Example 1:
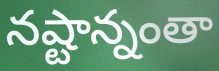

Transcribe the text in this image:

నష్టాన్నంతా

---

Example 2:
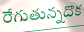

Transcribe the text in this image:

రేగుతున్నదొక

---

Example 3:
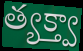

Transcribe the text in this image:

త్యక్త్వా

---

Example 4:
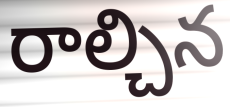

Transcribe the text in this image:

రాల్చిన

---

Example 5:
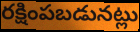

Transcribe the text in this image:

రక్షింపబడునట్లు